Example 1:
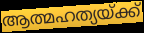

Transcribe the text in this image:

ആത്മഹത്യയ്ക്ക്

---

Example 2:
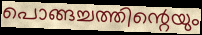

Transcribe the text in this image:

പൊങ്ങച്ചത്തിന്റെയും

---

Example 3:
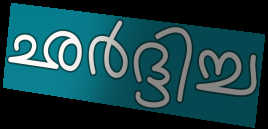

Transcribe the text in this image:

ഛർദ്ദിച്ച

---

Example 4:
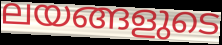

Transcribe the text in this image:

ലയങ്ങളുടെ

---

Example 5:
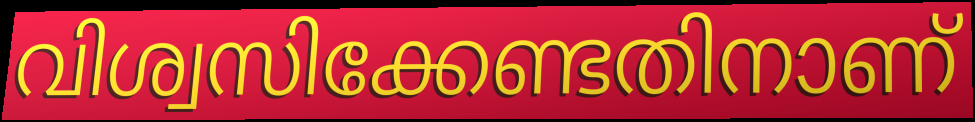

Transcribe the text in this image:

വിശ്വസിക്കേണ്ടതിനാണ്